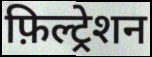
फ़िल्ट्रेशन